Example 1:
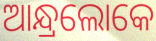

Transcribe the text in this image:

ଆନ୍ଧ୍ରଲୋକେ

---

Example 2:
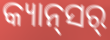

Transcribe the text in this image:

କ୍ୟାନ୍‍ସର୍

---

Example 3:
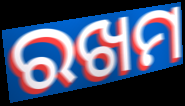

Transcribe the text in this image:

ରଖମ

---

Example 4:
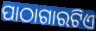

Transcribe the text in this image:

ପାଠାଗାରଟିଏ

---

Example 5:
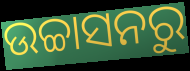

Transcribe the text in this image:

ଉଚ୍ଚାସନରୁ